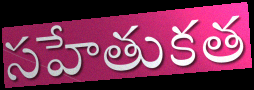
సహేతుకత